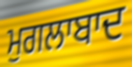
ਮੁਗਲਾਬਾਦ